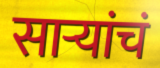
साऱ्यांचं